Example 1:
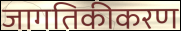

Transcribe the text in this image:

जागतिकीकरण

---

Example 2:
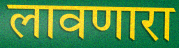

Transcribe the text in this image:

लावणारा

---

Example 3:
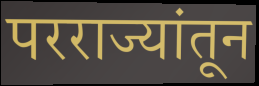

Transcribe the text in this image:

परराज्यांतून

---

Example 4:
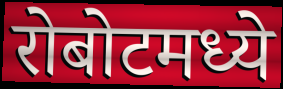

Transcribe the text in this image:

रोबोटमध्ये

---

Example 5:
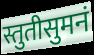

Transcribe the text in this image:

स्तुतीसुमनं